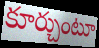
కూర్చుంటూ